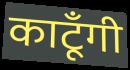
काटूँगी